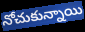
నోచుకున్నాయి